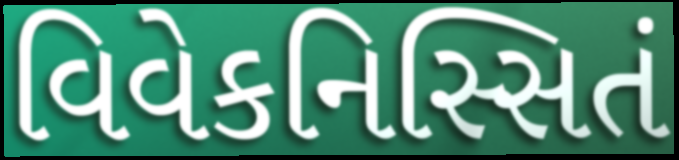
વિવેકનિસ્સિતં